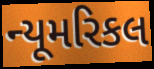
ન્યૂમરિકલ